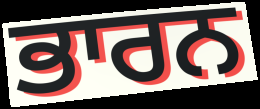
ਭਾਰਨ